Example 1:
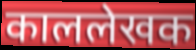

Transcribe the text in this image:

काललेखक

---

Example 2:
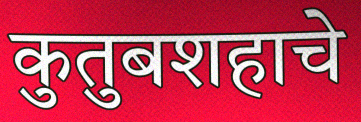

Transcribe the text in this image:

कुतुबशहाचे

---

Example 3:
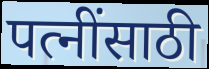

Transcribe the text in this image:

पत्नींसाठी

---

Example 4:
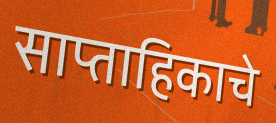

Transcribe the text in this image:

साप्ताहिकाचे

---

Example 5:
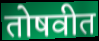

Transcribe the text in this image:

तोषवीत